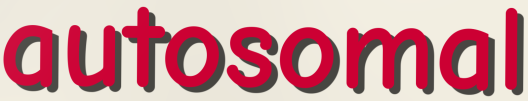
autosomal